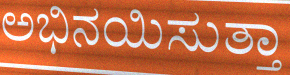
ಅಭಿನಯಿಸುತ್ತಾ